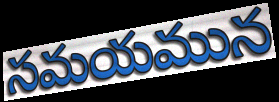
సమయమున